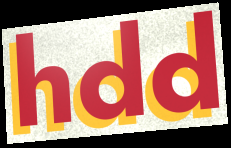
hdd